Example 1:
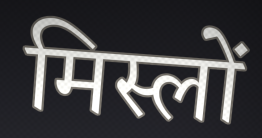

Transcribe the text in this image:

मिस्लों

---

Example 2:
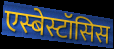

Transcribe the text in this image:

एस्बेस्टॉसिस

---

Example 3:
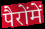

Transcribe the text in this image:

पैरोंमें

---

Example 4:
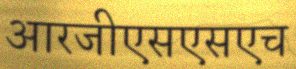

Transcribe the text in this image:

आरजीएसएसएच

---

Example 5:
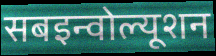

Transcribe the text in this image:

सबइन्वोल्यूशन